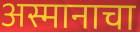
अस्मानाचा